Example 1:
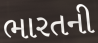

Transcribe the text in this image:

ભારતની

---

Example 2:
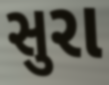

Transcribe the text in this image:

સુરા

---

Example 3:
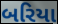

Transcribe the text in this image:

બરિયા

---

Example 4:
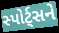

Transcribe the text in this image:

સ્પોર્ટ્સને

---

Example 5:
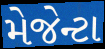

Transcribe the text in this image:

મેજેન્ટા